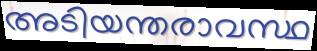
അടിയന്തരാവസ്ഥ